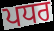
ਪਧਰ